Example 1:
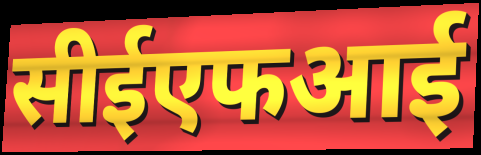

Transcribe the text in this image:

सीईएफआई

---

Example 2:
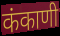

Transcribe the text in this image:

कंकाणी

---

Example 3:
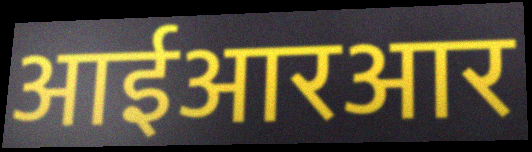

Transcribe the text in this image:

आईआरआर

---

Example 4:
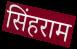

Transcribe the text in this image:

सिंहराम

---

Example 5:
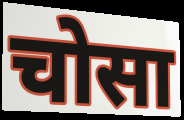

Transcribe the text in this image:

चोसा